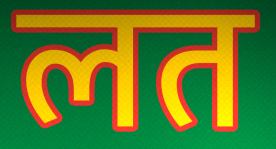
लत